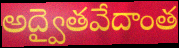
అద్వైతవేదాంత